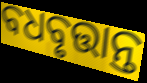
ବଧବୃତ୍ତାନ୍ତ